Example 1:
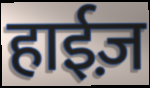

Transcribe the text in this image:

हाईज़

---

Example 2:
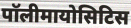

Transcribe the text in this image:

पॉलीमायोसिटिस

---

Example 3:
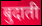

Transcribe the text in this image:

बुदाती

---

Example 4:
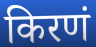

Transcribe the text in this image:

किरणं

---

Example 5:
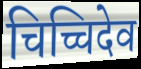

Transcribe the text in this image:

चिच्चिदेव